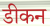
डीकन